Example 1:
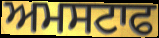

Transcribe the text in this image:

ਅਮਸਟਾਫ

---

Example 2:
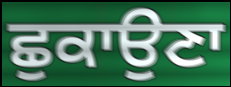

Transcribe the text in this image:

ਛੁਕਾਉਣਾ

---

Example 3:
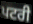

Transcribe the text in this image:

ਪਟਰੀ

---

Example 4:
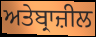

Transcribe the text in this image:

ਅਤੇਬ੍ਰਾਜ਼ੀਲ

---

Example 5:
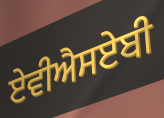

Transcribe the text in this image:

ਏਵੀਐਸਏਬੀ